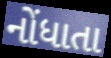
નોંધાતા